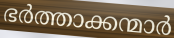
ഭർത്താക്കന്മാർ